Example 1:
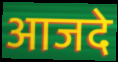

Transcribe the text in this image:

आजदे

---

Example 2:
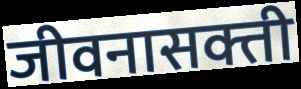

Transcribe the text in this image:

जीवनासक्ती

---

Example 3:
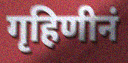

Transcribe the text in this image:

गृहिणीनं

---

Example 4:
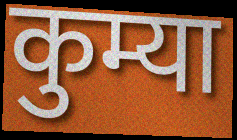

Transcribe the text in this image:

कुम्या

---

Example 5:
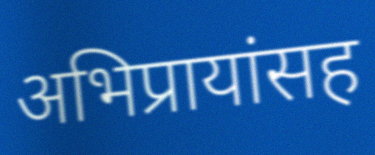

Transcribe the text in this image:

अभिप्रायांसह